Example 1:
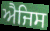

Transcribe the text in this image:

ਐਜਿਸ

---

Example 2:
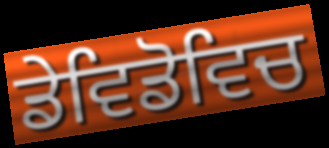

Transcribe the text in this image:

ਡੇਵਿਡੋਵਿਚ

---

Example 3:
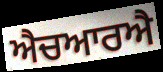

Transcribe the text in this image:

ਐਚਆਰਐ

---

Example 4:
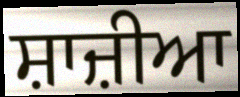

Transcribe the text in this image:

ਸ਼ਾਜ਼ੀਆ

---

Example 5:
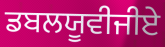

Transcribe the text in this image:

ਡਬਲਯੂਵੀਜੀਏ